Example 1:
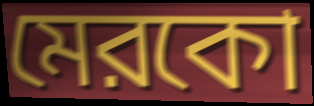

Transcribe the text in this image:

মেরকো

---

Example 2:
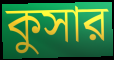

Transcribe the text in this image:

কুসার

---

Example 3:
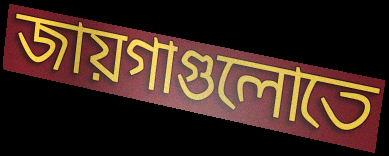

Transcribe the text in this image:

জায়গাগুলোতে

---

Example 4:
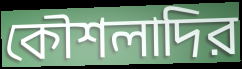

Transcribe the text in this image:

কৌশলাদির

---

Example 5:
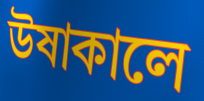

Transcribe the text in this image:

উষাকালে